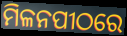
ମିଳନପୀଠରେ